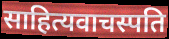
साहित्यवाचस्पति